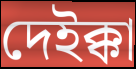
দেইক্কা